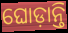
ଘୋଡ଼ାନ୍ତି